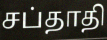
சப்தாதி